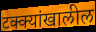
टक्क्यांखालील